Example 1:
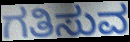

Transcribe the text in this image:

ಗತಿಸುವ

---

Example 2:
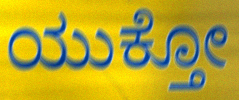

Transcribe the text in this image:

ಯುಕ್ತೋ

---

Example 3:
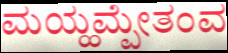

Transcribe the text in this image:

ಮಯ್ಹಮ್ಪೇತಂವ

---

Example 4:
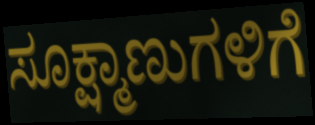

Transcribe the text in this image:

ಸೂಕ್ಷ್ಮಾಣುಗಳಿಗೆ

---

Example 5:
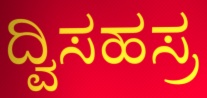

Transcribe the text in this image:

ದ್ವಿಸಹಸ್ರ